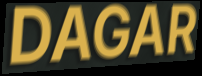
DAGAR